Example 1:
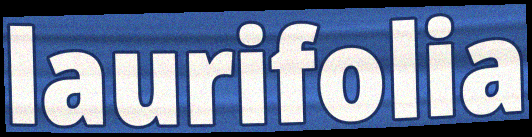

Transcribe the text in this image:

laurifolia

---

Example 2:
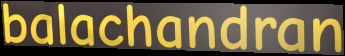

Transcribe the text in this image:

balachandran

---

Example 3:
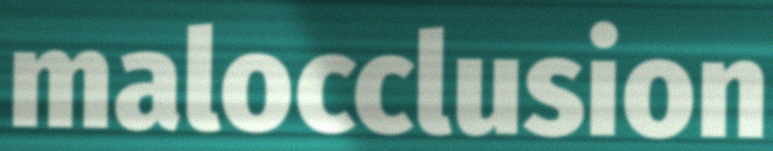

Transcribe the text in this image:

malocclusion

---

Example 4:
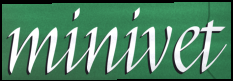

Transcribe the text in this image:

minivet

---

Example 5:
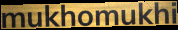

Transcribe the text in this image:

mukhomukhi